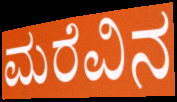
ಮರೆವಿನ